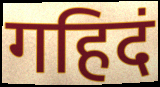
गहिदं